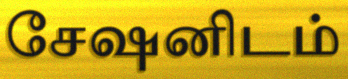
சேஷனிடம்